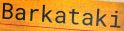
Barkataki